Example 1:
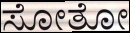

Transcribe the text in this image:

ಸೋತೋ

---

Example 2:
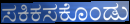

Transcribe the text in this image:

ಸಕಿಕಸಕೊಂಡು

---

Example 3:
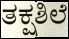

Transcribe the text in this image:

ತಕ್ಷಶಿಲೆ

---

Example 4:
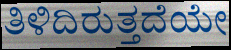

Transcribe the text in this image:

ತಿಳಿದಿರುತ್ತದೆಯೇ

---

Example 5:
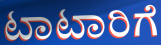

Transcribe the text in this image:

ಟಾಟಾರಿಗೆ